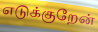
எடுக்குறேன்